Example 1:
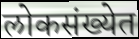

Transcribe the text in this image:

लोकसंख्येत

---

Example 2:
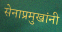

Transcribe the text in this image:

सेनाप्रमुखांनी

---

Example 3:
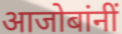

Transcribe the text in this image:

आजोबांनीं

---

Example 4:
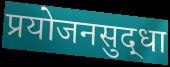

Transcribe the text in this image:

प्रयोजनसुद्धा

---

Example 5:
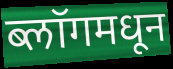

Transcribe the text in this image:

ब्लॉगमधून